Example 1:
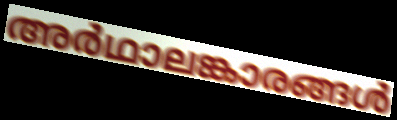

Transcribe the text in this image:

അർഥാലങ്കാരങ്ങൾ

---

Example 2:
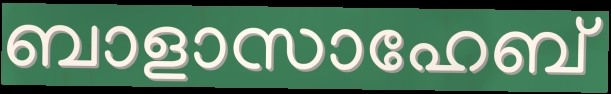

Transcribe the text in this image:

ബാളാസാഹേബ്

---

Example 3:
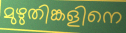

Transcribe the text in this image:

മുഴുതിങ്കളിനെ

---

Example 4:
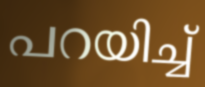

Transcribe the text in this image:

പറയിച്ച്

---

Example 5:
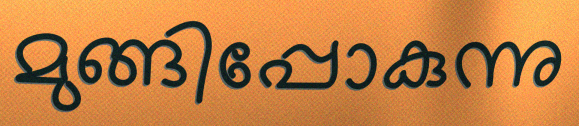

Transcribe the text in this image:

മുങ്ങിപ്പോകുന്നു